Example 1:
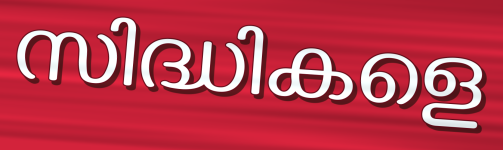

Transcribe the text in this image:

സിദ്ധികളെ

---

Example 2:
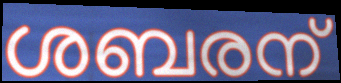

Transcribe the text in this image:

ശബരന്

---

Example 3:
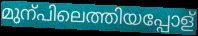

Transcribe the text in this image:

മുന്പിലെത്തിയപ്പോള്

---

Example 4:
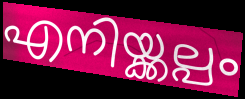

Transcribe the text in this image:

എനിയ്ക്കല്പം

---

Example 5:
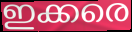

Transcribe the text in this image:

ഇക്കരെ